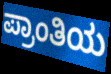
ಪ್ರಾಂತಿಯ